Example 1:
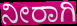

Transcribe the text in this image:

ನೀರಾಗಿ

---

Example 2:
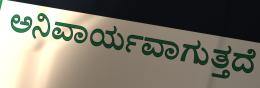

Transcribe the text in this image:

ಅನಿವಾರ್ಯವಾಗುತ್ತದೆ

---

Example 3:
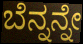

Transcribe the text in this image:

ಬೆನ್ನನ್ನೇ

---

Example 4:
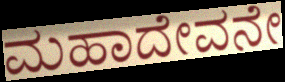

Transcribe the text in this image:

ಮಹಾದೇವನೇ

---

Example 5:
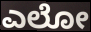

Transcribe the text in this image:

ಎಲೋ